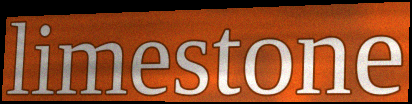
limestone